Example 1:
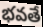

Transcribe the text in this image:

భవతే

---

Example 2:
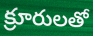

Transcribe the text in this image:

క్రూరులతో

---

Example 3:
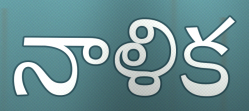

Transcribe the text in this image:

నాళిక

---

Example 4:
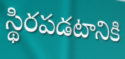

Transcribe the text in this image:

స్థిరపడటానికి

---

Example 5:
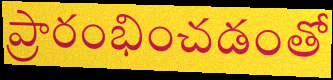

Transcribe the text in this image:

ప్రారంభించడంతో